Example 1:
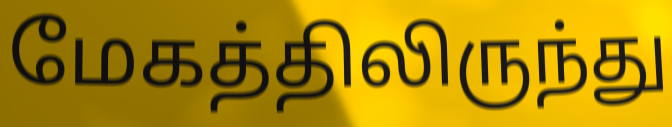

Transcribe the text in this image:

மேகத்திலிருந்து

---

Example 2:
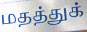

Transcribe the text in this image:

மதத்துக்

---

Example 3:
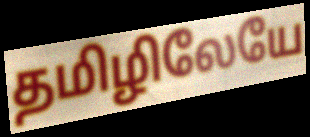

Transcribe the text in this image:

தமிழிலேயே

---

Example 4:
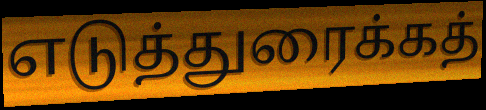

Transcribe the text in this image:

எடுத்துரைக்கத்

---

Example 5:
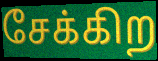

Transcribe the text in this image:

சேக்கிற